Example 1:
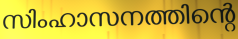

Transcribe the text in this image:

സിംഹാസനത്തിന്റെ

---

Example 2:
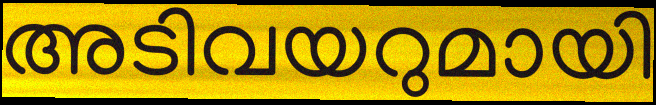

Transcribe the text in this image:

അടിവയറുമായി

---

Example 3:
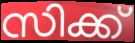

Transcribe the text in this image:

സിക്ക്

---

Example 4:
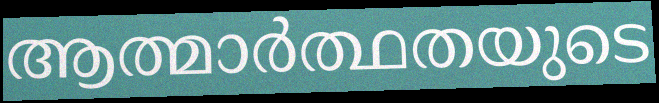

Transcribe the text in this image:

ആത്മാർത്ഥതയുടെ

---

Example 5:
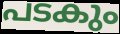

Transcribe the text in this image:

പടകും